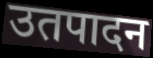
उतपादन